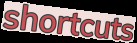
shortcuts